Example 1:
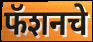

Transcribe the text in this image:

फॅशनचे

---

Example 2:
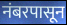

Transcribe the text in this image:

नंबरपासून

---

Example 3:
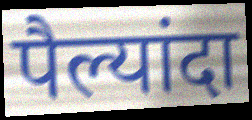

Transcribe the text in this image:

पैल्यांदा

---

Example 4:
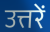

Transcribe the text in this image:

उत्तरें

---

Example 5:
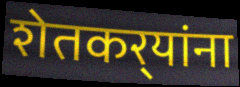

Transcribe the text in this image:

शेतकर्‍यांना